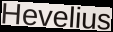
Hevelius